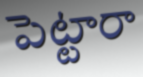
పెట్టారా